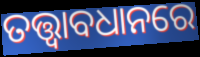
ତତ୍ତ୍ୱାବଧାନରେ